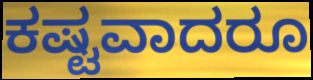
ಕಷ್ಟವಾದರೂ